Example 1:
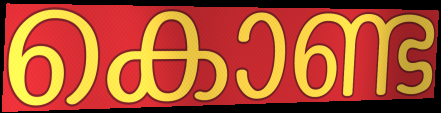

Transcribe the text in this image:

കൊണ്ട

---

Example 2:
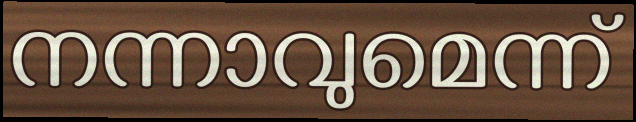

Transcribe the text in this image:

നന്നാവുമെന്ന്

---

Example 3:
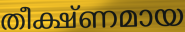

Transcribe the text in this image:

തീക്ഷ്‌ണമായ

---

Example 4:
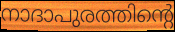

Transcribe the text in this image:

നാദാപുരത്തിന്റെ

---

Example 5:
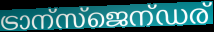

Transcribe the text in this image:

ട്രാന്സ്ജെന്ഡര്